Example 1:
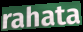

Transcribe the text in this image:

rahata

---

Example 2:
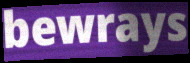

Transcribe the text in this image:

bewrays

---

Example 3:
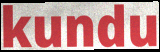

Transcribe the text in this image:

kundu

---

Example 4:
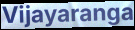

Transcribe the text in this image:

Vijayaranga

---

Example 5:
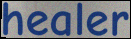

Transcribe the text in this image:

healer